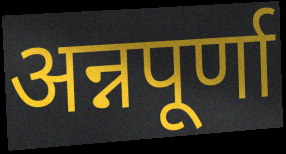
अन्नपूर्णा